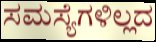
ಸಮಸ್ಯೆಗಳಿಲ್ಲದ